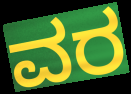
ವರ